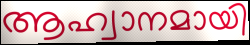
ആഹ്വാനമായി